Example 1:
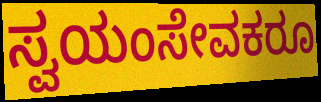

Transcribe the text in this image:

ಸ್ವಯಂಸೇವಕರೂ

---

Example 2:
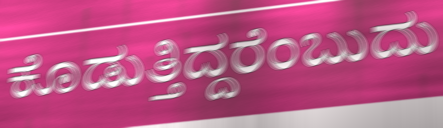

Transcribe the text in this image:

ಕೊಡುತ್ತಿದ್ದರೆಂಬುದು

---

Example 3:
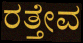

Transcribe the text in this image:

ರತ್ತೇವ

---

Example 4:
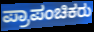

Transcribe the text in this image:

ಪ್ರಾಪಂಚಿಕರು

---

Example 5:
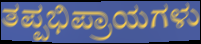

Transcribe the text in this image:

ತಪ್ಪಭಿಪ್ರಾಯಗಳು